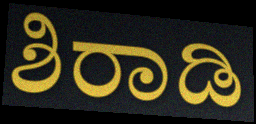
ಶಿರಾಡಿ